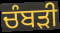
ਚੰਬੜੀ